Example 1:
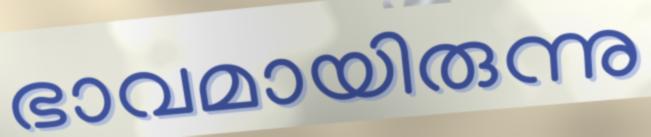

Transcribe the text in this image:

ഭാവമായിരുന്നു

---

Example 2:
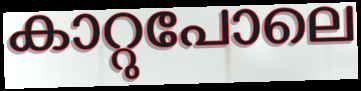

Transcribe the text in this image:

കാറ്റുപോലെ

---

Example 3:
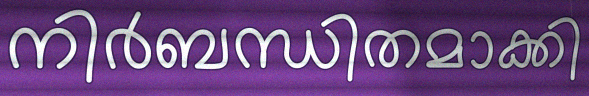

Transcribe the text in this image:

നിർബന്ധിതമാക്കി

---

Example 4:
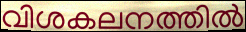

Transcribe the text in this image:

വിശകലനത്തിൽ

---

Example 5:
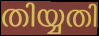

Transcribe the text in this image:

തിയ്യതി